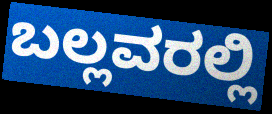
ಬಲ್ಲವರಲ್ಲಿ